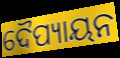
ଦୈପ୍ୟାୟନ